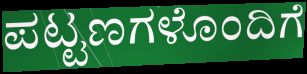
ಪಟ್ಟಣಗಳೊಂದಿಗೆ